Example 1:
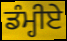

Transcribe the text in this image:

ਡੰਮ੍ਹੀਏ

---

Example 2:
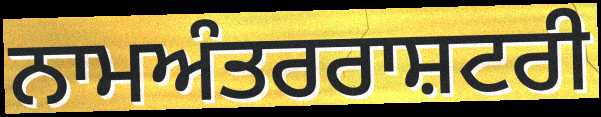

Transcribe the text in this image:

ਨਾਮਅੰਤਰਰਾਸ਼ਟਰੀ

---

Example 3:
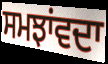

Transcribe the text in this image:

ਸਮਝਾਂਵਦਾ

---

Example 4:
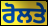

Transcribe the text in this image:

ਰੋਲਤੇ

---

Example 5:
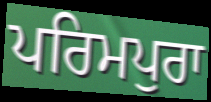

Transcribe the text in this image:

ਪਰਿਮਪੁਰਾ